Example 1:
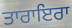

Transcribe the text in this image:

ਤਾਰਾਇਰਾ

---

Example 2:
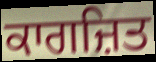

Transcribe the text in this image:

ਕਾਗਜ਼ਿਤ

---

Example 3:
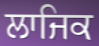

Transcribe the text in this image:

ਲਾਜਿਕ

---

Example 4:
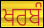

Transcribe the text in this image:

ਖਰਬੰ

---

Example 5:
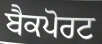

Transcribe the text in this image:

ਬੈਕਪੋਰਟ